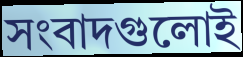
সংবাদগুলোই